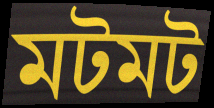
মটমট